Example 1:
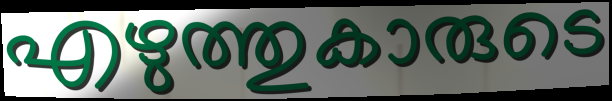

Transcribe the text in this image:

എഴുത്തുകാരുടെ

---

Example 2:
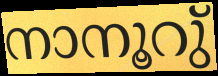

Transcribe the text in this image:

നാനൂറു്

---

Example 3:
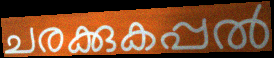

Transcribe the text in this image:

ചരക്കുകപ്പൽ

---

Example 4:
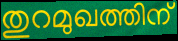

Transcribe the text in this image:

തുറമുഖത്തിന്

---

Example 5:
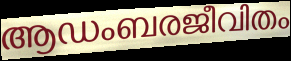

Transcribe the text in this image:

ആഡംബരജീവിതം